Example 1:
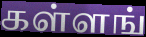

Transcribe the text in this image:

கள்ளங்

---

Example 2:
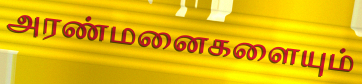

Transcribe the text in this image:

அரண்மனைகளையும்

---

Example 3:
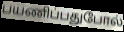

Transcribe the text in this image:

பயணிப்பதுபோல்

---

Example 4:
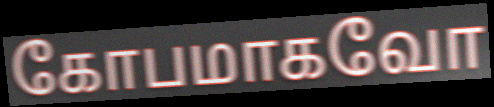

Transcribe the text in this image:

கோபமாகவோ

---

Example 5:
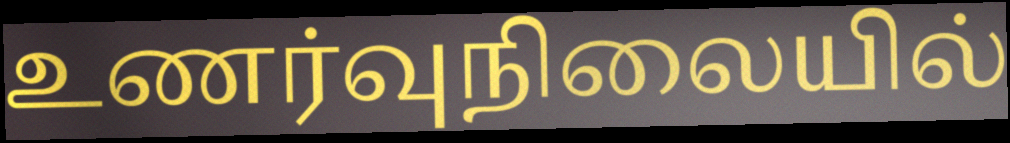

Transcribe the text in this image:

உணர்வுநிலையில்